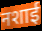
नशाई